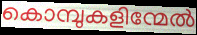
കൊമ്പുകളിന്മേൽ